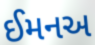
ઈમનઅ